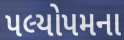
પલ્યોપમના